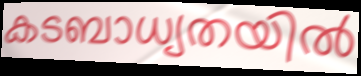
കടബാധ്യതയിൽ